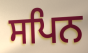
ਸਪਿਨ